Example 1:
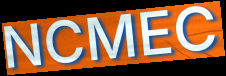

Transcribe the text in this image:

NCMEC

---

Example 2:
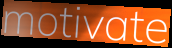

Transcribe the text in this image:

motivate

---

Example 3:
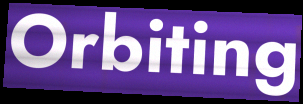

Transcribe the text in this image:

Orbiting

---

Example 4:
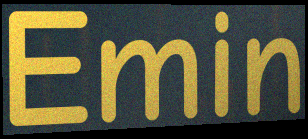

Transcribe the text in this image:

Emin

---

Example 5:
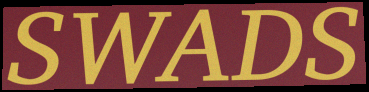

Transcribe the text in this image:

SWADS